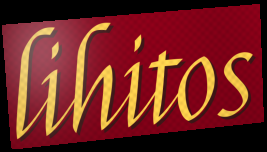
lihitos